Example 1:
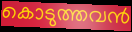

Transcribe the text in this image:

കൊടുത്തവൻ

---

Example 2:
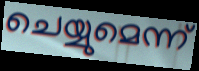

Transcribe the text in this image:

ചെയ്യുമെന്ന്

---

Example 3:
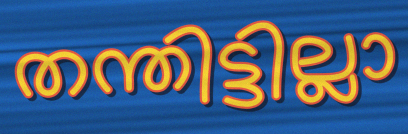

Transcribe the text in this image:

തന്തിട്ടില്ലാ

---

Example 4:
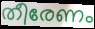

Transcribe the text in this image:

തീരേണം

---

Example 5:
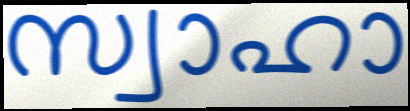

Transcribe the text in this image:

സ്വാഹാ